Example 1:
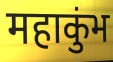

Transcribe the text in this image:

महाकुंभ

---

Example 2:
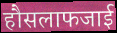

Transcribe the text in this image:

हौसलाफजाई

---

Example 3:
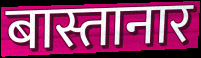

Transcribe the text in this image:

बास्तानार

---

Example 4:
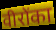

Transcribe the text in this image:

वीरोंका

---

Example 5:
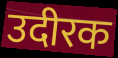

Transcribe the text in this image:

उदीरक